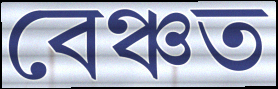
বেঞ্চত